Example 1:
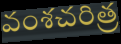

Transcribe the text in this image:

వంశచరిత్ర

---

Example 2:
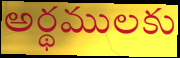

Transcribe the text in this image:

అర్థములకు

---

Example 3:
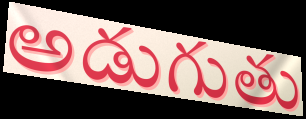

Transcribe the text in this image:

అడుగుతు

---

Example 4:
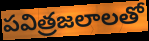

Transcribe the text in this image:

పవిత్రజలాలతో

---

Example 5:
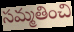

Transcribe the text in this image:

సమ్మతించి